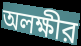
অলক্ষীর